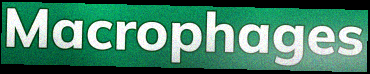
Macrophages